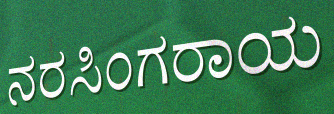
ನರಸಿಂಗರಾಯ